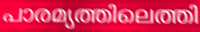
പാരമ്യത്തിലെത്തി